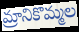
మ్రానికొమ్మల